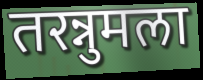
तरन्नुमला